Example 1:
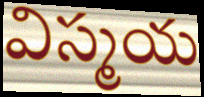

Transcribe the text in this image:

విస్మయ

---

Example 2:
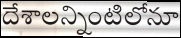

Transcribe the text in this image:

దేశాలన్నింటిలోనూ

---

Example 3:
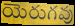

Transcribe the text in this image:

యెరుగవు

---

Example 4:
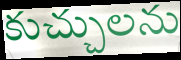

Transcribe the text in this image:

కుచ్చులను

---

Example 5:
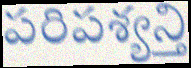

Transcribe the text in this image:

పరిపశ్యన్తి